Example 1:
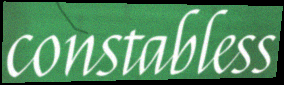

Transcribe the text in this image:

constabless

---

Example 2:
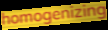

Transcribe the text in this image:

homogenizing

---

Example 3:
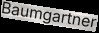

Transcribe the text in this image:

Baumgartner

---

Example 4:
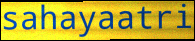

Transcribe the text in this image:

sahayaatri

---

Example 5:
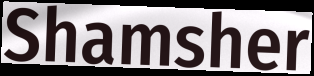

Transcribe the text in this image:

Shamsher